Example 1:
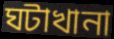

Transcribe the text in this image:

ঘটাখানা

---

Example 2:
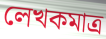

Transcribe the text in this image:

লেখকমাত্র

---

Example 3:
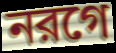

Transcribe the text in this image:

নরগে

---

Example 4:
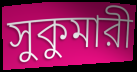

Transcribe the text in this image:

সুকুমারী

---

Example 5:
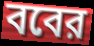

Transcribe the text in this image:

ববের